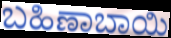
ಬಹಿಣಾಬಾಯಿ